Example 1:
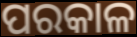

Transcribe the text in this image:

ପରକାଳ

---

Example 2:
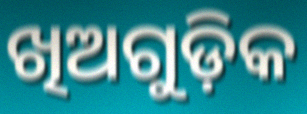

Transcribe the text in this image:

ଖିଅଗୁଡ଼ିକ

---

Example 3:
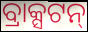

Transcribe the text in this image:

ବ୍ରାକ୍ସଟନ୍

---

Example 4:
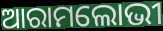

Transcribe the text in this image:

ଆରାମଲୋଭୀ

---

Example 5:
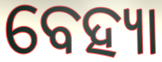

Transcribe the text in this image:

ବେହ୍ୟା